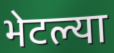
भेटल्या